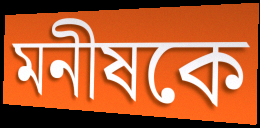
মনীষকে